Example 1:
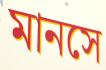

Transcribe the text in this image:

মানসে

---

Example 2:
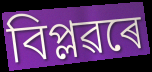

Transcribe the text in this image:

বিপ্লৱৰে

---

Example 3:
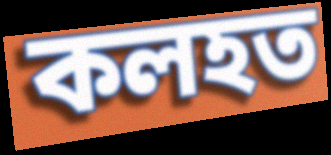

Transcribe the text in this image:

কলহত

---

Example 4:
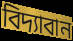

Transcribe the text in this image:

বিদ্যাবান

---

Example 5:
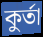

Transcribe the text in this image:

কুৰ্তা